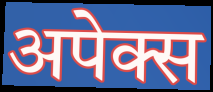
अपेक्स